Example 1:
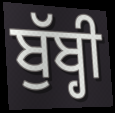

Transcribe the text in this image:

ਬੁੱਬ੍ਹੀ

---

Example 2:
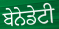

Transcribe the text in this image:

ਬੇਨੇਡੇਟੀ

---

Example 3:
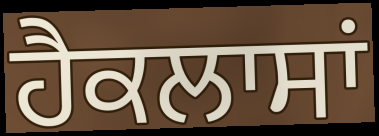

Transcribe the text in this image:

ਹੈਕਲਾਸਾਂ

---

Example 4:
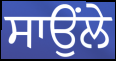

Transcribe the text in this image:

ਸਾਉਂਲੇ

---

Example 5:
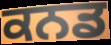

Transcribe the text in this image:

ਕਨਡ